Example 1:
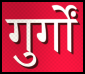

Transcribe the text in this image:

गुर्गों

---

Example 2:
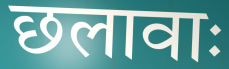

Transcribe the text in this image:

छलावाः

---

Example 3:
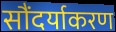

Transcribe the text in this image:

सौंदर्याकरण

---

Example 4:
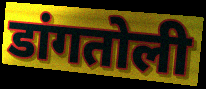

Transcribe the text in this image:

डांगतोली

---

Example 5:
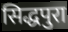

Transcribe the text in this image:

सिद्धपुरा